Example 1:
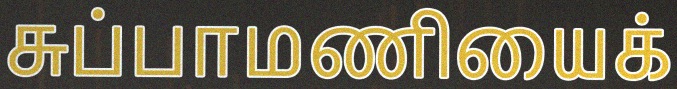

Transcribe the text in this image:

சுப்பாமணியைக்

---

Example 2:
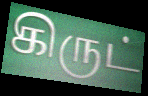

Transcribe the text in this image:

கிருட்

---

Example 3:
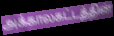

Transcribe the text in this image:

அக்காலகட்டத்தின்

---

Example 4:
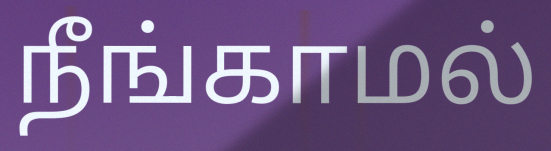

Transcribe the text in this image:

நீங்காமல்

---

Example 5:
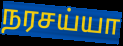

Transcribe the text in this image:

நரசய்யா